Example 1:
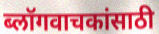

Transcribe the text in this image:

ब्लॉगवाचकांसाठी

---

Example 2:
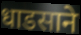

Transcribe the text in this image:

धाडसाने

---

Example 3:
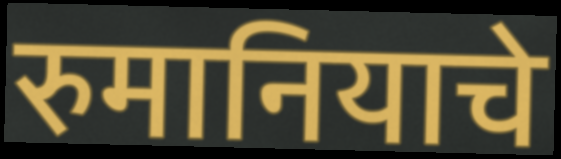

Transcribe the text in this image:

रुमानियाचे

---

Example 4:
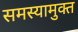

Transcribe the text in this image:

समस्यामुक्त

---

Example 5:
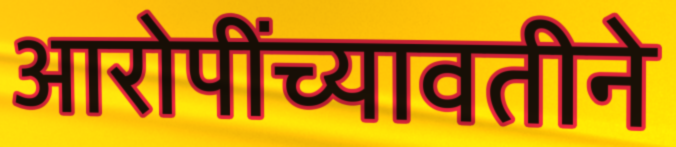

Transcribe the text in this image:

आरोपींच्यावतीने